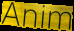
Anim